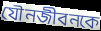
যৌনজীবনকে